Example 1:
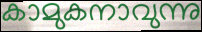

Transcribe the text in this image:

കാമുകനാവുന്നു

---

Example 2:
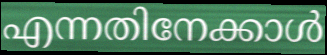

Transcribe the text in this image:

എന്നതിനേക്കാൾ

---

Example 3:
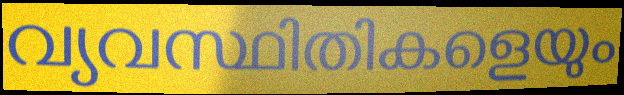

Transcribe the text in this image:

വ്യവസ്ഥിതികളെയും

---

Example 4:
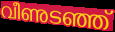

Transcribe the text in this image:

വീണുടഞ്ഞ്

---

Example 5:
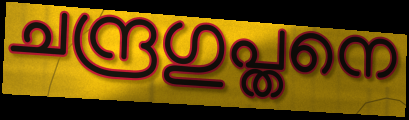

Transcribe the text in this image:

ചന്ദ്രഗുപ്തനെ